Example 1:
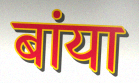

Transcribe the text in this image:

बांया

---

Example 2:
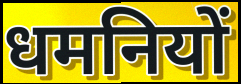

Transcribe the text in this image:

धमनियों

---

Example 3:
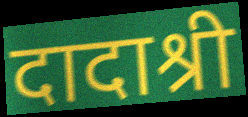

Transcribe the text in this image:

दादाश्री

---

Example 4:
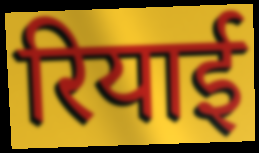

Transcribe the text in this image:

रियाई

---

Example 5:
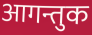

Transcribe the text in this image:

आगन्तुक